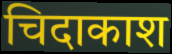
चिदाकाश